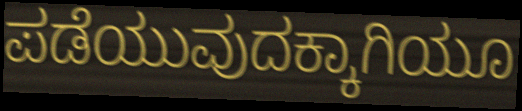
ಪಡೆಯುವುದಕ್ಕಾಗಿಯೂ